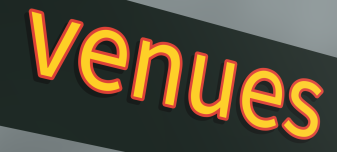
venues